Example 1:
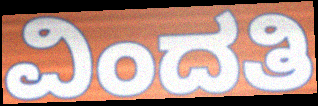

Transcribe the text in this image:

ವಿಂದತಿ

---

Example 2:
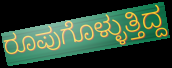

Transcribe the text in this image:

ರೂಪುಗೊಳ್ಳುತ್ತಿದ್ದ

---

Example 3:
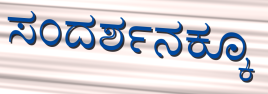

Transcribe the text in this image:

ಸಂದರ್ಶನಕ್ಕೂ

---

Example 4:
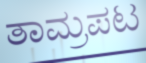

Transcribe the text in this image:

ತಾಮ್ರಪಟ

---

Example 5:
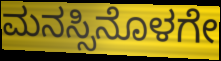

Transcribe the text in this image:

ಮನಸ್ಸಿನೊಳಗೇ